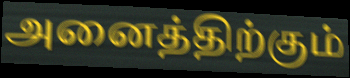
அனைத்திற்கும்